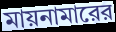
মায়নামারের